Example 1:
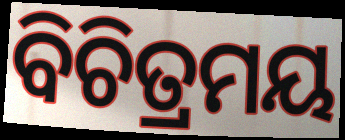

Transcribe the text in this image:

ବିଚିତ୍ରମୟ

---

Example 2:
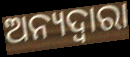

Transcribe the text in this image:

ଅନ୍ୟଦ୍ଵାରା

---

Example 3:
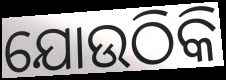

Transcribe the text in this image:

ଯୋଉଠିକି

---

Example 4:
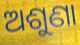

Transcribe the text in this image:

ଅଶୁଣା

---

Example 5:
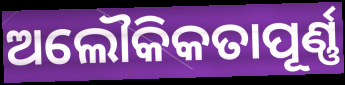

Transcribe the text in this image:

ଅଲୌକିକତାପୂର୍ଣ୍ଣ